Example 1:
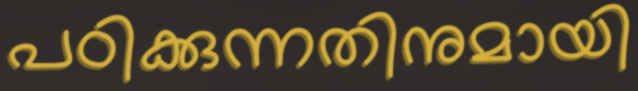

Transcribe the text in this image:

പഠിക്കുന്നതിനുമായി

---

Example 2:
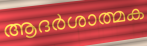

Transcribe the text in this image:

ആദർശാത്മക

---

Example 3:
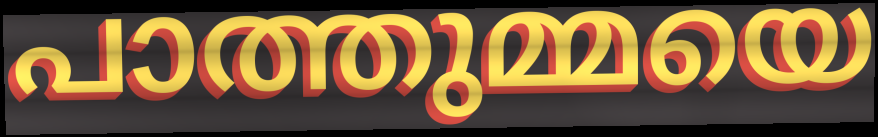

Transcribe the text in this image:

പാത്തുമ്മയെ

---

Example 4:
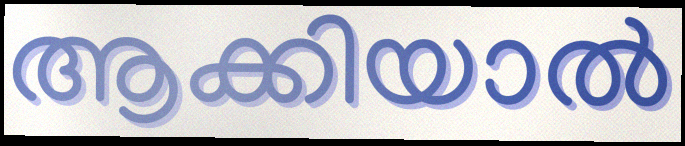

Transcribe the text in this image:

ആക്കിയാൽ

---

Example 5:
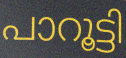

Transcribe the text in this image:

പാറൂട്ടി